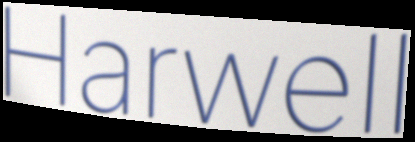
Harwell